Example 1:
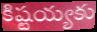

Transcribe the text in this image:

కిష్టయ్యకు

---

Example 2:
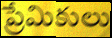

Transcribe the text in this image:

ప్రేమికులు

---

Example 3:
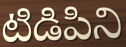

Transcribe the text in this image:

టిడిపిని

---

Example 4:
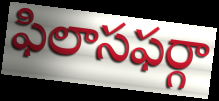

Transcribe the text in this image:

ఫిలాసఫర్గా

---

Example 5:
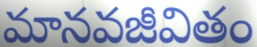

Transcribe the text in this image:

మానవజీవితం